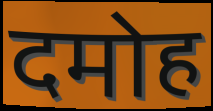
दमोह